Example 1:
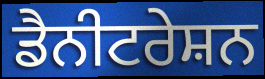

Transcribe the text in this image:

ਡੈਨੀਟਰੇਸ਼ਨ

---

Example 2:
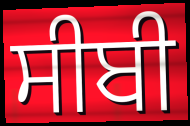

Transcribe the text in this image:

ਸੀਬੀ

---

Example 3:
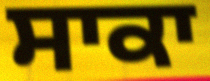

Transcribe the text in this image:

ਸਾਕਾ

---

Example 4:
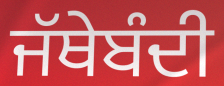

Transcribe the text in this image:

ਜੱਥੇਬੰਦੀ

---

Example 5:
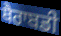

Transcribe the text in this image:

ਥੈਰਾਬਡੀ